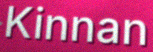
Kinnan